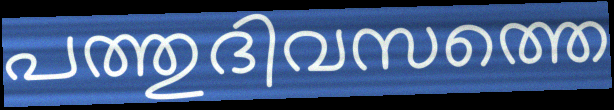
പത്തുദിവസത്തെ